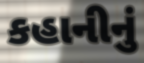
કહાનીનું